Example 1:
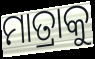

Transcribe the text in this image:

ମାତ୍ରାକୁ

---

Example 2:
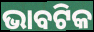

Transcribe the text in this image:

ଭାବଟିକ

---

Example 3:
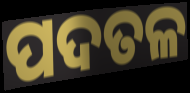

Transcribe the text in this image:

ପଦତଳ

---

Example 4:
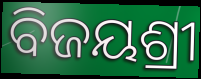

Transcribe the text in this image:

ବିଜୟଶ୍ରୀ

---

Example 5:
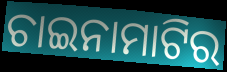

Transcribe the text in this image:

ଚାଇନାମାଟିର